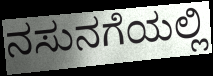
ನಸುನಗೆಯಲ್ಲಿ